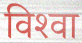
विश्‍वा